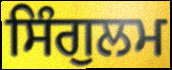
ਸਿੰਗੁਲਮ